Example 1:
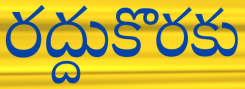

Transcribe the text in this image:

రద్దుకొరకు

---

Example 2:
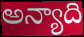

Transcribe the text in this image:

అన్యాది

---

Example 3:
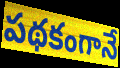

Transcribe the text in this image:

పథకంగానే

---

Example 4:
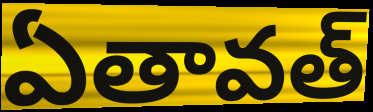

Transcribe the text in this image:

ఏతావత్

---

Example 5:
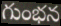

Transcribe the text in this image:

గుంభన